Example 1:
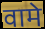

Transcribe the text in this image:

वामे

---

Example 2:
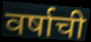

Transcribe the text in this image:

वर्षाची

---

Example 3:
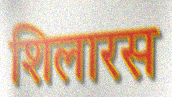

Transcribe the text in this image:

शिलारस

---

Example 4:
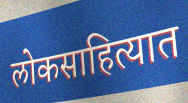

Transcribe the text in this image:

लोकसाहित्यात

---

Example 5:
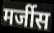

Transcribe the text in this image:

मर्जीस